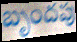
బృందపు